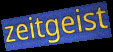
zeitgeist